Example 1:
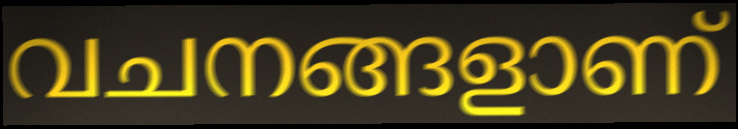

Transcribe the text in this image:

വചനങ്ങളാണ്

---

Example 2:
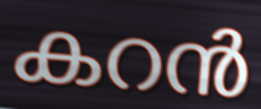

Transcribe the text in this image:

കറൻ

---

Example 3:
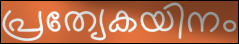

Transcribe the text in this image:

പ്രത്യേകയിനം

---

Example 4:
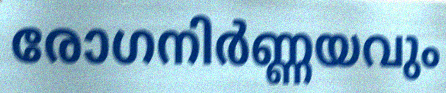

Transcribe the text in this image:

രോഗനിർണ്ണയവും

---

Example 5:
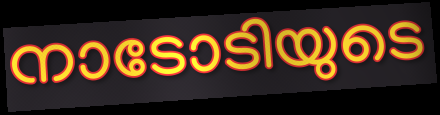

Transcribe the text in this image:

നാടോടിയുടെ